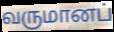
வருமானப்